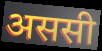
अससी